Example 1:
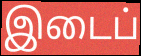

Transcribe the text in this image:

இடைப்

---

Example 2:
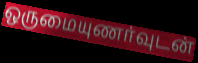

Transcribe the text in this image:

ஒருமையுணர்வுடன்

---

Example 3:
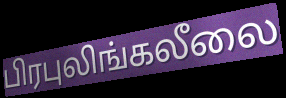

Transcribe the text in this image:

பிரபுலிங்கலீலை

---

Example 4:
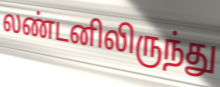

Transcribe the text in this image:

லண்டனிலிருந்து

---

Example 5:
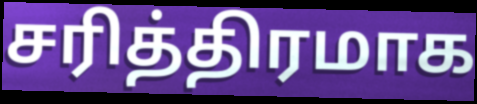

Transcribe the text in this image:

சரித்திரமாக